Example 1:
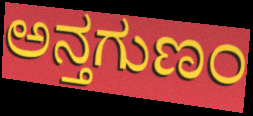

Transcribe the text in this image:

ಅನ್ತಗುಣಂ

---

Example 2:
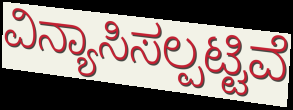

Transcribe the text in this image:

ವಿನ್ಯಾಸಿಸಲ್ಪಟ್ಟಿವೆ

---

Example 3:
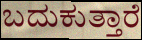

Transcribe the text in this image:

ಬದುಕುತ್ತಾರೆ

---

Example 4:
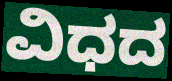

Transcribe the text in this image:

ವಿಧದ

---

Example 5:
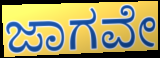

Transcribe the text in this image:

ಜಾಗವೇ